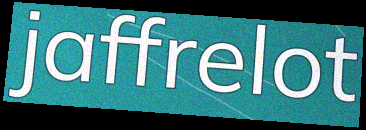
jaffrelot